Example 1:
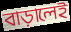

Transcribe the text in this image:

বাড়ালেই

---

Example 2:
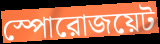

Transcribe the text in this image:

স্পোরোজয়েট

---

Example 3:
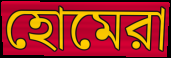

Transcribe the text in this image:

হোমেরা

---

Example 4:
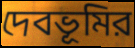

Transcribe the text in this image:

দেবভূমির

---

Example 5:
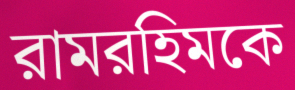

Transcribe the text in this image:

রামরহিমকে